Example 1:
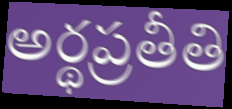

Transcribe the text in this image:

అర్థప్రతీతి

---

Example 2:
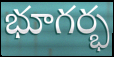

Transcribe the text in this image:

భూగర్భ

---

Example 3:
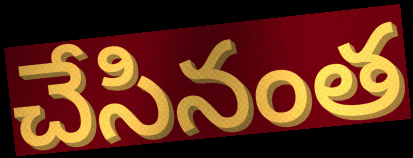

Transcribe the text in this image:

చేసినంత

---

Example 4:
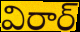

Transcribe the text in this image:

విరార్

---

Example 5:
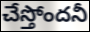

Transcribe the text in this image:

చేస్తోందనీ